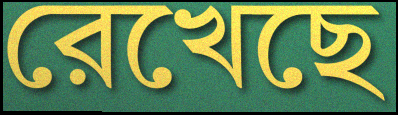
রেখেছে